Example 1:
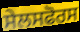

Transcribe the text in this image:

ਸੇਲਸਫੋਰਸ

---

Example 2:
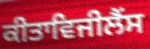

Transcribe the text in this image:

ਕੀਤਾਵਿਜੀਲੈਂਸ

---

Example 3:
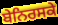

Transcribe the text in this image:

ਬੇਨਿਰਸਕੇ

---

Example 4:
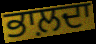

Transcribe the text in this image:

ਭਾਲ਼ਦਾ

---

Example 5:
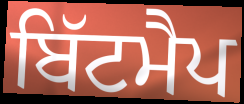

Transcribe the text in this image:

ਬਿੱਟਮੈਪ